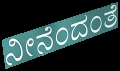
ನೀನೆಂದಂತೆ